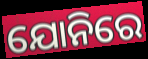
ଯୋନିରେ